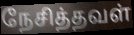
நேசித்தவள்